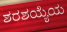
ಶರಶಯ್ಯೆಯ